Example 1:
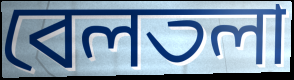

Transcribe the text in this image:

বেলতলা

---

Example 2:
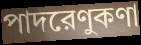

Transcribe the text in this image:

পাদরেণুকণা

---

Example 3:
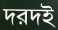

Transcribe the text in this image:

দরদই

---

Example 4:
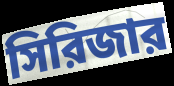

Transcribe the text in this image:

সিরিজার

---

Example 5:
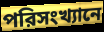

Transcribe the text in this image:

পরিসংখ্যানে